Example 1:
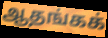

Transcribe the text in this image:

ஆதங்கக்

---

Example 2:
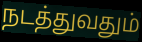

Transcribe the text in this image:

நடத்துவதும்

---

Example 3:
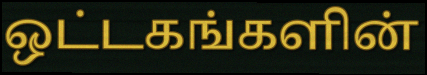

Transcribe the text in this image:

ஒட்டகங்களின்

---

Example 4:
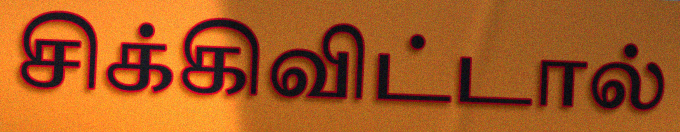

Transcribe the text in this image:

சிக்கிவிட்டால்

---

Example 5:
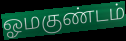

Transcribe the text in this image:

ஓமகுண்டம்